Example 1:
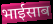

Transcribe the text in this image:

भाईसाब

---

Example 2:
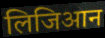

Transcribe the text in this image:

लिजिआन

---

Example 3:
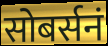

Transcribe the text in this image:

सोबर्सनं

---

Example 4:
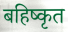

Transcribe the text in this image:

बहिष्कृत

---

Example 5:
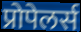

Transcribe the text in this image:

प्रोपेलर्स